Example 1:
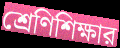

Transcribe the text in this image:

শ্রেণিশিক্ষার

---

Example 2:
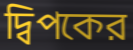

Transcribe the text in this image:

দ্বিপকের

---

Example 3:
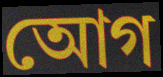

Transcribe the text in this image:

আেগ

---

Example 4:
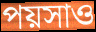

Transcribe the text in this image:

পয়সাও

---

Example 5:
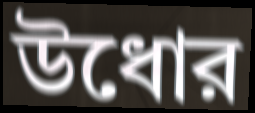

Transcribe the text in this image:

উধোর